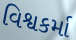
વિશ્વકર્મા